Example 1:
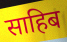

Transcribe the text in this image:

साहिब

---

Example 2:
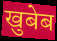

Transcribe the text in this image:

खुबेब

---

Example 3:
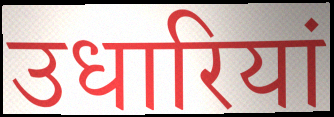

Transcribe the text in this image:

उधारियां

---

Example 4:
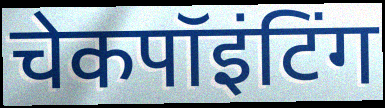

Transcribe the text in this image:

चेकपॉइंटिंग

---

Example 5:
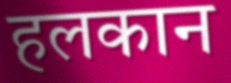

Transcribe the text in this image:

हलकान